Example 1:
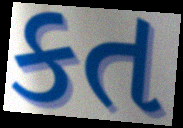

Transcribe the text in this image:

કત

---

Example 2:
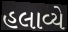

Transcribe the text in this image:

હલાવ્યે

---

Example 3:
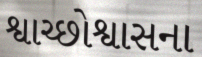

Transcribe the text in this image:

શ્વાચ્છોશ્વાસના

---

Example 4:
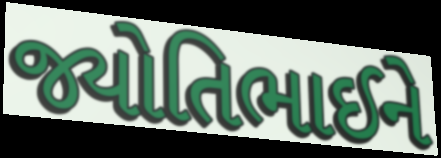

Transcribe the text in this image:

જ્યોતિભાઈને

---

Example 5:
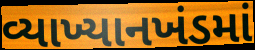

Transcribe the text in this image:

વ્યાખ્યાનખંડમાં